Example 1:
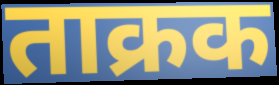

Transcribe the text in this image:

ताक्रक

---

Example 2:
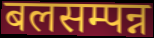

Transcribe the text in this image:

बलसम्पन्न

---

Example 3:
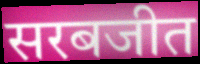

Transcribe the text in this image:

सरबजीत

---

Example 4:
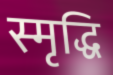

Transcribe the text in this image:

स्मृद्धि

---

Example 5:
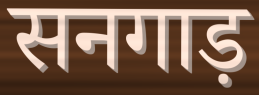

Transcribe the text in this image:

सनगाड़